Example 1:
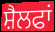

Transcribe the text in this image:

ਸ਼ੈਲਫਾਂ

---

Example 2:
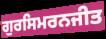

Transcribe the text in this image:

ਗੁਰਸਿਮਰਨਜੀਤ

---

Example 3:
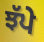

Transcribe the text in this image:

ਝੱਪੇ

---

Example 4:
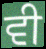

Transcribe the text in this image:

ਵੀ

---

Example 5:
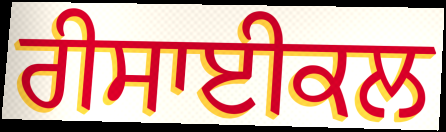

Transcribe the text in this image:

ਰੀਸਾਈਕਲ